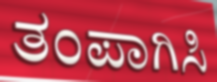
ತಂಪಾಗಿಸಿ